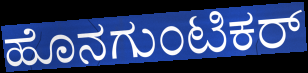
ಹೊನಗುಂಟಿಕರ್